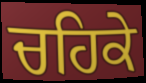
ਚਹਿਕੇ